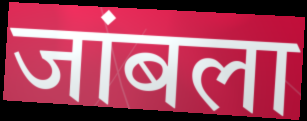
जांबला